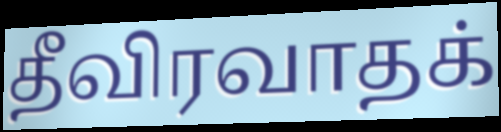
தீவிரவாதக்